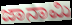
ಜಾನಾಮಿ